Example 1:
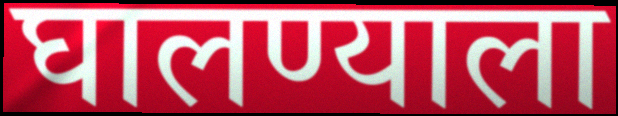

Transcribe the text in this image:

घालण्याला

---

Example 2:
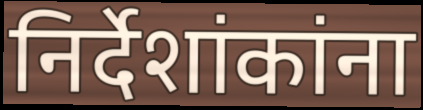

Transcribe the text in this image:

निर्देशांकांना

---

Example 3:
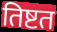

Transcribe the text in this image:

तिष्टत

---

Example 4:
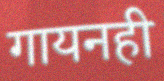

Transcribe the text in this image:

गायनही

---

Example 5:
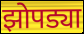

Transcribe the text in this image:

झोपड्या